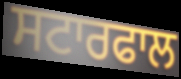
ਸਟਾਰਫਾਲ